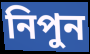
নিপুন